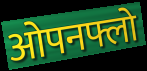
ओपनफ्लो